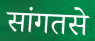
सांगतसे